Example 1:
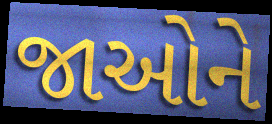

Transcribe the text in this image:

જાઓને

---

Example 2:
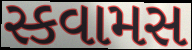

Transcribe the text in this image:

સ્કવામસ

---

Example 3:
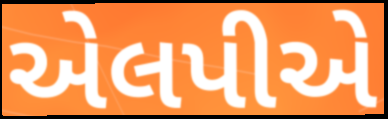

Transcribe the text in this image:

એલપીએ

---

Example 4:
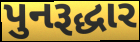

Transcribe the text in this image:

પુનરૂદ્ધાર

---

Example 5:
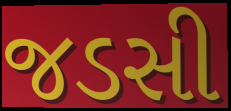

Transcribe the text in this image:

જડસી